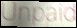
Unpaid